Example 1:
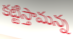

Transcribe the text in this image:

కట్టిస్తామన్న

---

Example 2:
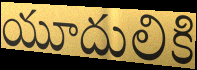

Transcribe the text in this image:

యూదులికి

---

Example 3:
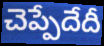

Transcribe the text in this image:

చెప్పేదేదీ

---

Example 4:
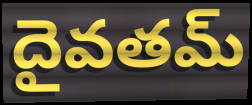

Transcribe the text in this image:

దైవతమ్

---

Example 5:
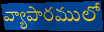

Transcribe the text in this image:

వ్యాపారములో